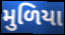
મુળિયા